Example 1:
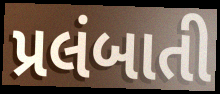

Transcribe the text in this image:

પ્રલંબાતી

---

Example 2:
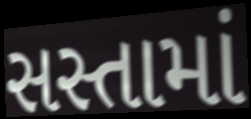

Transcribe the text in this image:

સસ્તામાં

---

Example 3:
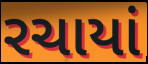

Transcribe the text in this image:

રચાયાં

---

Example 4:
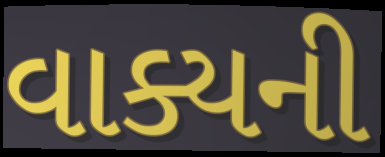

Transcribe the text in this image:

વાક્યની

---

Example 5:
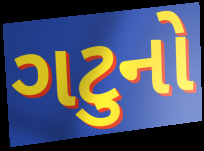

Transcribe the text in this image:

ગટુનો